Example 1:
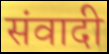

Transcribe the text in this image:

संवादी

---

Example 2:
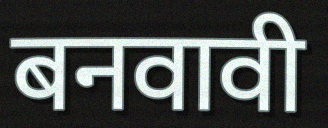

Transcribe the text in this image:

बनवावी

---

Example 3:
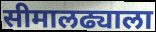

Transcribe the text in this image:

सीमालढ्याला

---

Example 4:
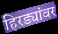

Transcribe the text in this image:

हिरड्यांवर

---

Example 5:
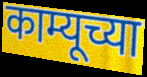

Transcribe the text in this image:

काम्यूच्या